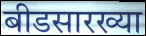
बीडसारख्या